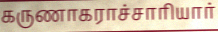
கருணாகராச்சாரியார்